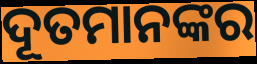
ଦୂତମାନଙ୍କର